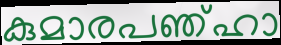
കുമാരപഞ്ഹാ